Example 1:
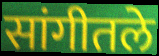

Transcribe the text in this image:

सांगीतले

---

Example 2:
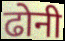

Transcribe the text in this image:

ढोनी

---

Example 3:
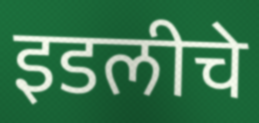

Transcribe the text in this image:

इडलीचे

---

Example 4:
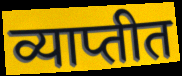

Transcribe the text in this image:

व्याप्तीत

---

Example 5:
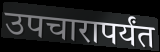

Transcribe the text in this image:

उपचारापर्यंत